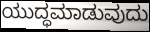
ಯುದ್ಧಮಾಡುವುದು